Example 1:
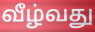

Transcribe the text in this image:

வீழ்வது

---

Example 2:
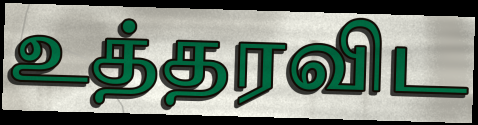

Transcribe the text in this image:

உத்தரவிட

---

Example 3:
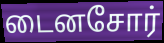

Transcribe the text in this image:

டைனசோர்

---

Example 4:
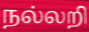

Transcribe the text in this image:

நல்லறி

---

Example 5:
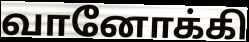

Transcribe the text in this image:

வானோக்கி